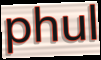
phul